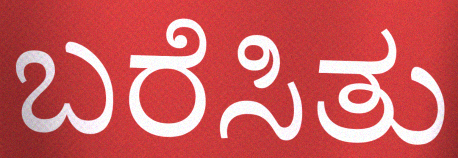
ಬರೆಸಿತು